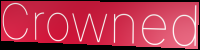
Crowned